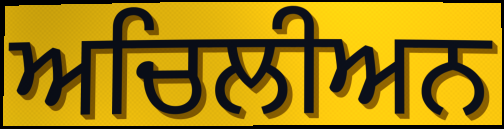
ਅਚਿਲੀਅਨ